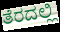
ತೆರದಲ್ಲಿ